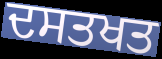
ਦਸਤਖਤ